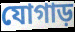
যোগাড়